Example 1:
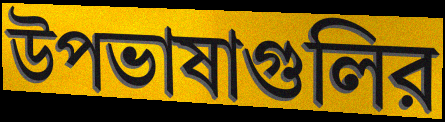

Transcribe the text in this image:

উপভাষাগুলির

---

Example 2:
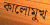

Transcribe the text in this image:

কালোমুখ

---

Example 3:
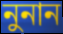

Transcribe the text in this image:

নুনান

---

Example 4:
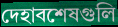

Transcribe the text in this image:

দেহাবশেষগুলি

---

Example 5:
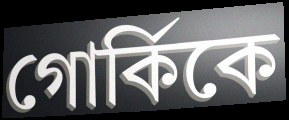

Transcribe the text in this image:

গোর্কিকে